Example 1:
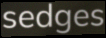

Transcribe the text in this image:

sedges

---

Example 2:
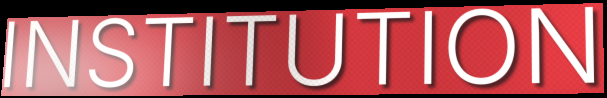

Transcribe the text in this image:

INSTITUTION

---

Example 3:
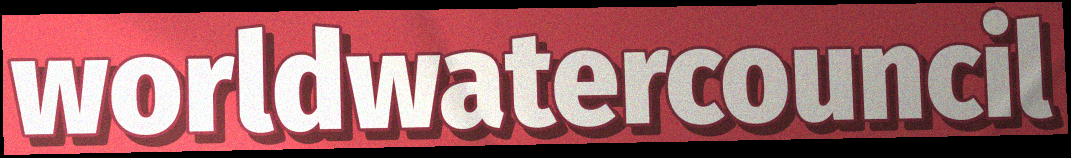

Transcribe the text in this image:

worldwatercouncil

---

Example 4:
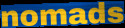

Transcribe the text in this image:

nomads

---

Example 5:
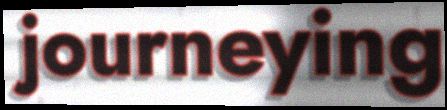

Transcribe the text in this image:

journeying